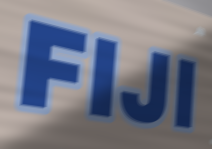
FIJI